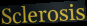
Sclerosis